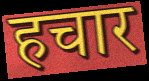
हचार